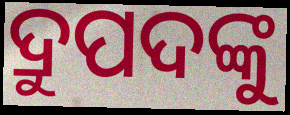
ଦ୍ରୁପଦଙ୍କୁ